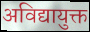
अविद्यायुक्त